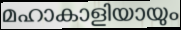
മഹാകാളിയായും